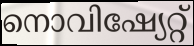
നൊവിഷ്യേറ്റ്